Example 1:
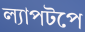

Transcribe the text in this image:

ল্যাপটপে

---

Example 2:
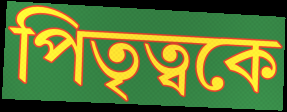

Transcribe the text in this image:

পিতৃত্বকে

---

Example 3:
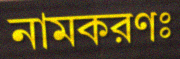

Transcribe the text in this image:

নামকরণঃ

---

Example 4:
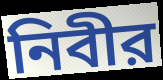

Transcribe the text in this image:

নিবীর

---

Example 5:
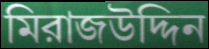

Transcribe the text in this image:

মিরাজউদ্দিন